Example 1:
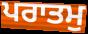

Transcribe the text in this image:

ਪਰਾਤਮੁ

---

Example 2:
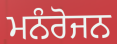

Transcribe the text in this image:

ਮਨੰਰੋਜਨ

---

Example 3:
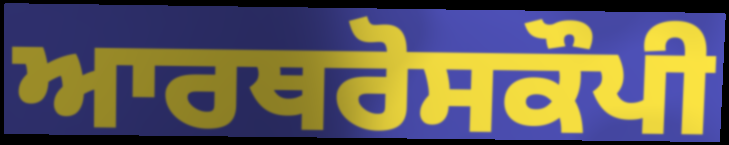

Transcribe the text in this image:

ਆਰਥਰੋਸਕੌਪੀ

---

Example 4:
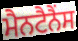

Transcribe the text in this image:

ਮੈਨਟੈਨੈਂਸ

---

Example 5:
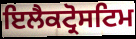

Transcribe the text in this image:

ਇਲੈਕਟ੍ਰੋਸਟਿਮ